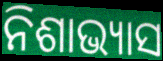
ନିଶାଭ୍ୟାସ